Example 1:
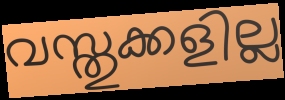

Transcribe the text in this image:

വസ്തുക്കളില്ല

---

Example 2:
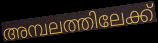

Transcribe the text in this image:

അമ്പലത്തിലേക്ക്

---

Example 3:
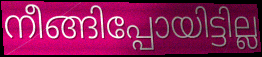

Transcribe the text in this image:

നീങ്ങിപ്പോയിട്ടില്ല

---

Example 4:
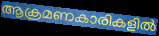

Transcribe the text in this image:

ആക്രമണകാരികളിൽ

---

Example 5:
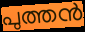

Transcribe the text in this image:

പുത്തൻ